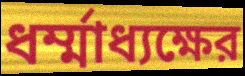
ধর্ম্মাধ্যক্ষের